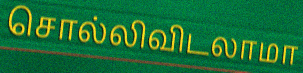
சொல்லிவிடலாமா